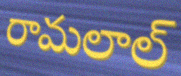
రామలాల్